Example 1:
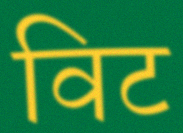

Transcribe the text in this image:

विट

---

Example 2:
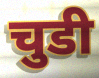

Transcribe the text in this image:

चुडी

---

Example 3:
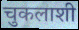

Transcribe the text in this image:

चुकलाशी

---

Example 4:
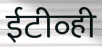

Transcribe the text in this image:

ईटीव्ही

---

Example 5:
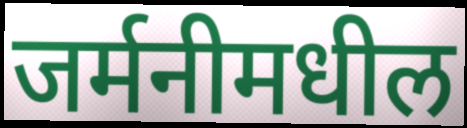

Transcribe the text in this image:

जर्मनीमधील